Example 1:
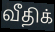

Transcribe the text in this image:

வீதிக்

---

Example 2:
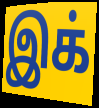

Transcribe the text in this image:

இக்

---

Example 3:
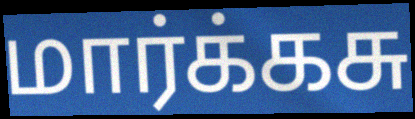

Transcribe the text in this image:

மார்க்கசு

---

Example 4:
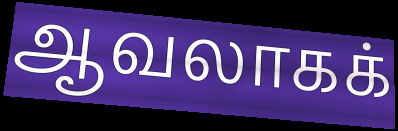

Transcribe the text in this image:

ஆவலாகக்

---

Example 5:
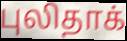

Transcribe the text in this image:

புலிதாக்